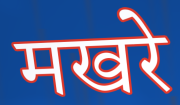
मखरे